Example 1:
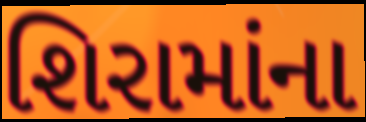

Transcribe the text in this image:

શિરામાંના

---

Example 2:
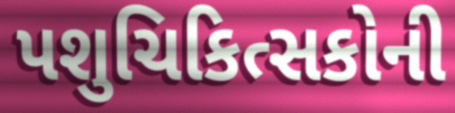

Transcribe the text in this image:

પશુચિકિત્સકોની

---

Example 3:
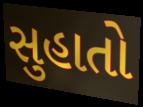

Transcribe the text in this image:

સુહાતો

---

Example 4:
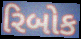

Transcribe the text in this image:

રિબોક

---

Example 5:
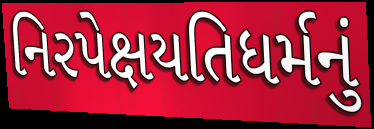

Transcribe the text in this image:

નિરપેક્ષયતિધર્મનું